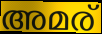
അമര്